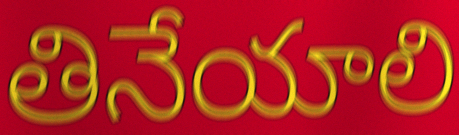
తినేయాలి